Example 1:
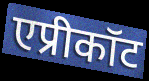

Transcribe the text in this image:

एप्रीकॉट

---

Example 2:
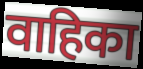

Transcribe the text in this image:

वाहिका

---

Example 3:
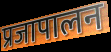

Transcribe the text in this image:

प्रजापालन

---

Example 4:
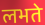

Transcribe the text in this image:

लभते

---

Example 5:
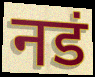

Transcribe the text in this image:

नडं